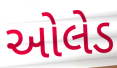
ઓલેડ